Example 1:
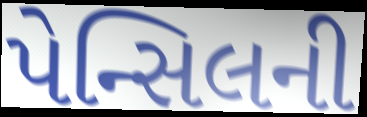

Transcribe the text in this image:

પેન્સિલની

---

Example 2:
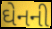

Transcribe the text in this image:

ઘેનની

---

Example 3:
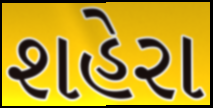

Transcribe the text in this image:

શહેરા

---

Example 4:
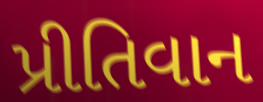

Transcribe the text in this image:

પ્રીતિવાન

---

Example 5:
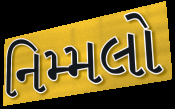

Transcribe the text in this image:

નિમ્મલો